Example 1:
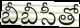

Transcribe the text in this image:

బీబీసీతో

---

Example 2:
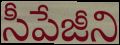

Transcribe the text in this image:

సీపేజీని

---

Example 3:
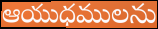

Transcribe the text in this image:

ఆయుధములను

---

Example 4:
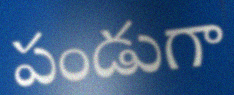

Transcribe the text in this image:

పండుగా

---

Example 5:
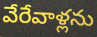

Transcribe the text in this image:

వేరేవాళ్లను